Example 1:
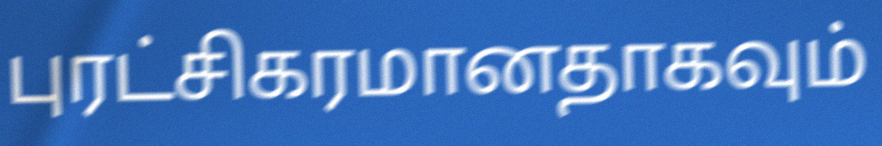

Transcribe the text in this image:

புரட்சிகரமானதாகவும்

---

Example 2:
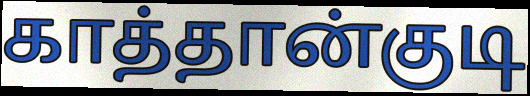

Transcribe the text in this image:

காத்தான்குடி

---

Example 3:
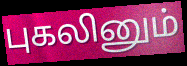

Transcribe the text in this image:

புகலினும்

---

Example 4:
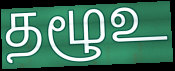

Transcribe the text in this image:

தழூஉ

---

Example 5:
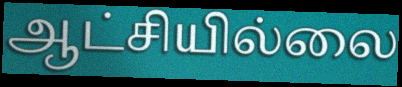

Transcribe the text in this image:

ஆட்சியில்லை